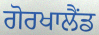
ਗੋਰਖਾਲੈਂਡ